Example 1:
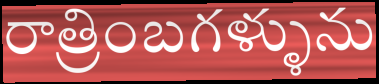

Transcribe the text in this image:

రాత్రింబగళ్ళును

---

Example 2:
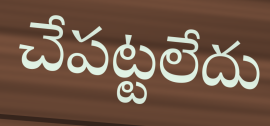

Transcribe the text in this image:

చేపట్టలేదు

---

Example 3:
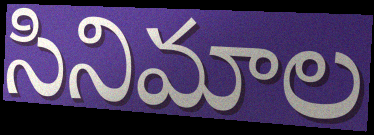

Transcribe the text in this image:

సినిమాల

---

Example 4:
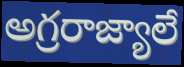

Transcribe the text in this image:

అగ్రరాజ్యాలే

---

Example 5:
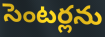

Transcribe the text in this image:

సెంటర్లను